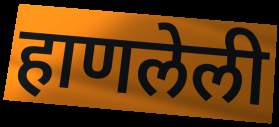
हाणलेली